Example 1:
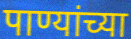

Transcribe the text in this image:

पाण्यांच्या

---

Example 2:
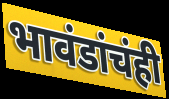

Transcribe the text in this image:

भावंडांचंही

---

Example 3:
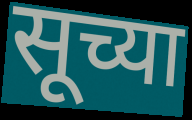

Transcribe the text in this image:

सूच्या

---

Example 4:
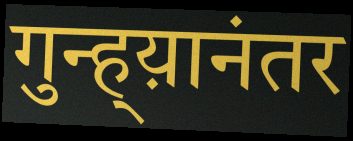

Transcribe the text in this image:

गुन्ह्य़ानंतर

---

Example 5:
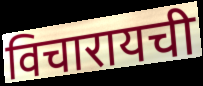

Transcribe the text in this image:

विचारायची